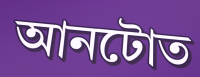
আনটোত